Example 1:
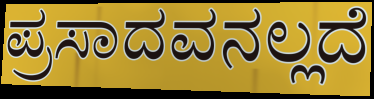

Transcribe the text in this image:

ಪ್ರಸಾದವನಲ್ಲದೆ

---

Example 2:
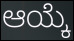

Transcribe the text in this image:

ಆಯ್ಕೆ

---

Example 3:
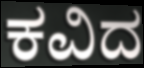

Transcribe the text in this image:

ಕವಿದ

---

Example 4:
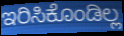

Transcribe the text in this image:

ಇರಿಸಿಕೊಂಡಿಲ್ಲ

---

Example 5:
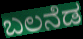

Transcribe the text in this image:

ಬಲನೆಡ